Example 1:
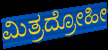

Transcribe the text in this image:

ಮಿತ್ರದ್ರೋಹೀ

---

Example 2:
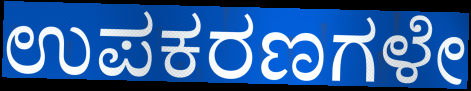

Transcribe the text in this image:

ಉಪಕರಣಗಳೇ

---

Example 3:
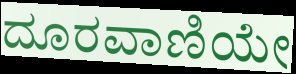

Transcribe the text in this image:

ದೂರವಾಣಿಯೇ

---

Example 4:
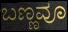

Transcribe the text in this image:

ಬಣ್ಣವೂ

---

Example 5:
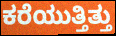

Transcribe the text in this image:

ಕರೆಯುತ್ತಿತ್ತು